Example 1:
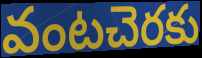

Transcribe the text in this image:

వంటచెరకు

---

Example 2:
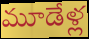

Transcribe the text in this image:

మూడేళ్ల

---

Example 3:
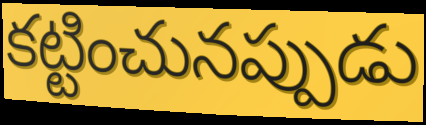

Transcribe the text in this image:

కట్టించునప్పుడు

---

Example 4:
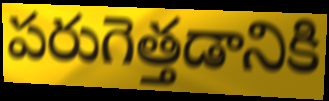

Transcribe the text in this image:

పరుగెత్తడానికి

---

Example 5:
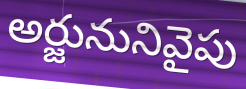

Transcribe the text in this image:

అర్జునునివైపు